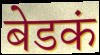
बेडकं